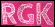
RGK